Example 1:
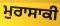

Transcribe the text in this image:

ਮੁਰਾਸਾਕੀ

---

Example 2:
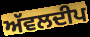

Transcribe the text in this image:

ਅੱਵਲਦੀਪ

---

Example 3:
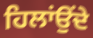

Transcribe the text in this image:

ਹਿਲਾਂਉਂਦੇ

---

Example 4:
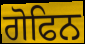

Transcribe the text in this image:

ਗੋਫਿਨ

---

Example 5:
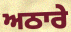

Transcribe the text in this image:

ਅਠਾਰੇ